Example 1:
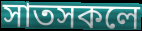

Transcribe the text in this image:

সাতসকলে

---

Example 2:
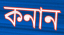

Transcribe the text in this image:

কনান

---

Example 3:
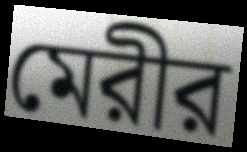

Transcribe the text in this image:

মেরীর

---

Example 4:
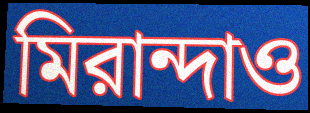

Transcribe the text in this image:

মিরান্দাও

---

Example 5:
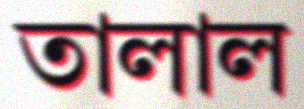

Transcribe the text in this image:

তালাল